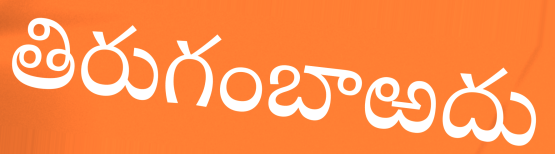
తిరుగంబాఱదు